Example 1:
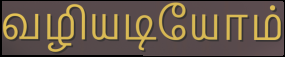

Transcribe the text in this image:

வழியடியோம்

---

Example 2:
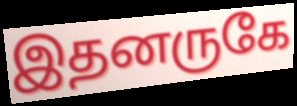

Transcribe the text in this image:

இதனருகே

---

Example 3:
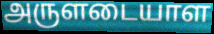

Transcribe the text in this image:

அருளடையாள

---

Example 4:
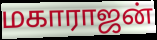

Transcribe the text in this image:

மகாராஜன்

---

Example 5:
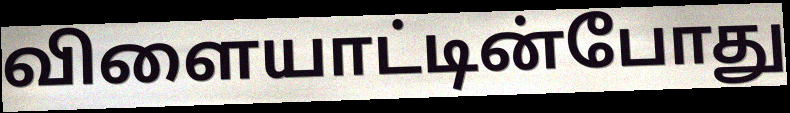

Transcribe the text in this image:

விளையாட்டின்போது